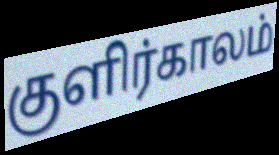
குளிர்காலம்